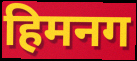
हिमनग